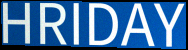
HRIDAY